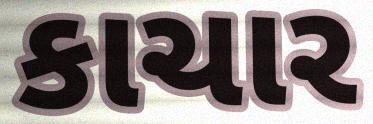
કાચાર